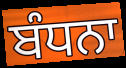
ਬੰਧਨਾ